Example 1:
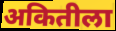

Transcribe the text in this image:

अकितीला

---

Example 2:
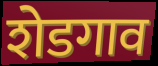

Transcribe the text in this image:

शेडगाव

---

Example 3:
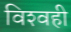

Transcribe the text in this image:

विश्वही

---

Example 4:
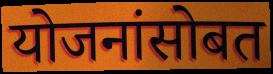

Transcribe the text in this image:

योजनांसोबत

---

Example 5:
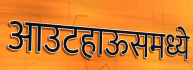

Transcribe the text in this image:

आउटहाऊसमध्ये